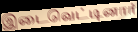
இடைவெட்டினார்